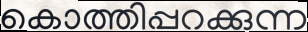
കൊത്തിപ്പറക്കുന്ന